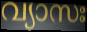
വ്യാസഃ